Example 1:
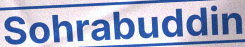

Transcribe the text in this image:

Sohrabuddin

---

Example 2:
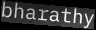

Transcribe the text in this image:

bharathy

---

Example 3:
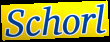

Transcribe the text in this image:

Schorl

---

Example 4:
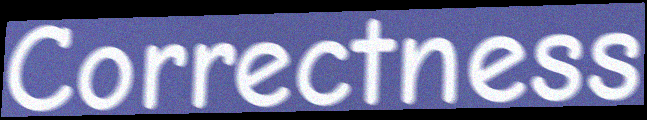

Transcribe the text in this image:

Correctness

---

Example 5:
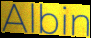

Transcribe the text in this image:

Albin